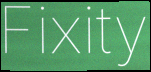
Fixity